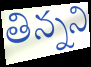
తిన్నని